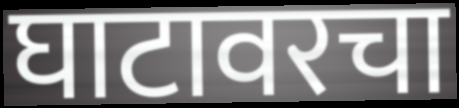
घाटावरचा